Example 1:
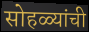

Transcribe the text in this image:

सोहळ्यांची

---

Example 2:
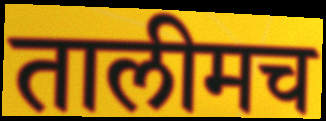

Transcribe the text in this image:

तालीमच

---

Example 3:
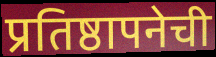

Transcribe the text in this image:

प्रतिष्ठापनेची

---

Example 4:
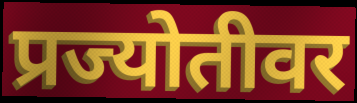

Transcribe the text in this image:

प्रज्योतीवर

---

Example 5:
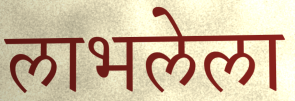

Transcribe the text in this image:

लाभलेला